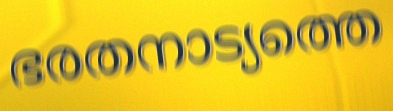
ഭരതനാട്യത്തെ